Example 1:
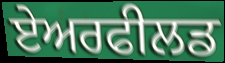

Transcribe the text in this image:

ਏਅਰਫੀਲਡ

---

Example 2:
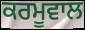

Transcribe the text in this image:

ਕਰਮੂਵਾਲ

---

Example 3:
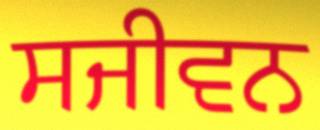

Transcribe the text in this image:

ਸਜੀਵਨ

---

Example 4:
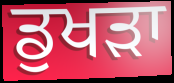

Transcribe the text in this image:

ਡੁਖੜਾ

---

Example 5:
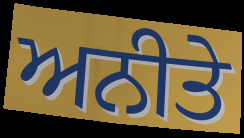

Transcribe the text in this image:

ਅਨੀਤੇ